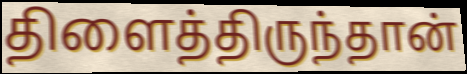
திளைத்திருந்தான்